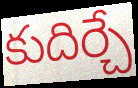
కుదిర్చే